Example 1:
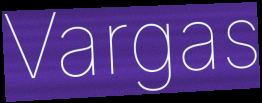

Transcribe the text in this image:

Vargas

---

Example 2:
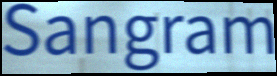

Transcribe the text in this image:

Sangram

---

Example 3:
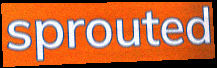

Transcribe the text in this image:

sprouted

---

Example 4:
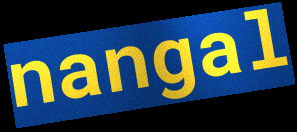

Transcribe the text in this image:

nangal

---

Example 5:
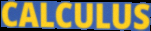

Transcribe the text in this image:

CALCULUS